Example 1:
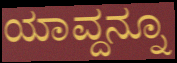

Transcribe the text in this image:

ಯಾವ್ದನ್ನೂ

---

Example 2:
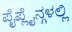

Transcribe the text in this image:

ಪೈಪ್ಲೈನ್ಗಳಲ್ಲಿ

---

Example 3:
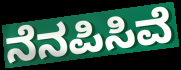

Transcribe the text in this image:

ನೆನಪಿಸಿವೆ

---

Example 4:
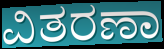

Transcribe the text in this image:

ವಿತರಣಾ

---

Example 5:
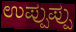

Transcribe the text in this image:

ಉಪ್ಪುಪ್ಪು